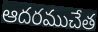
ఆదరముచేత